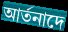
আর্তনাদে